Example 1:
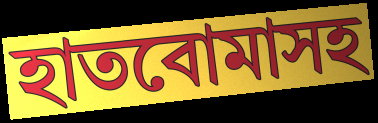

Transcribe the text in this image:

হাতবোমাসহ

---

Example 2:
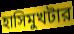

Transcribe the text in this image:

হাসিমুখটার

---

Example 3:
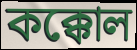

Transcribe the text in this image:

কক্কোল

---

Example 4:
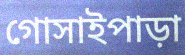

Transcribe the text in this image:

গোসাইপাড়া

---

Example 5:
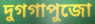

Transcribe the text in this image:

দুগগাপুজো